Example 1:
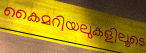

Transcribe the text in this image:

കൈമറിയലുകളിലൂടെ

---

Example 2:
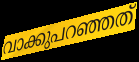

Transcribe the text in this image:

വാക്കുപറഞ്ഞത്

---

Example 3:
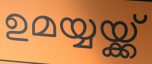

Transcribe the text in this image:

ഉമയ്യയ്ക്ക്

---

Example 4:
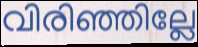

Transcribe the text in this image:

വിരിഞ്ഞില്ലേ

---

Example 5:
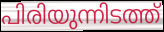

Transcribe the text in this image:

പിരിയുന്നിടത്ത്